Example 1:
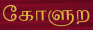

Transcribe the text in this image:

கோளுற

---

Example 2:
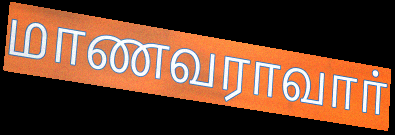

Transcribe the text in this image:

மாணவராவார்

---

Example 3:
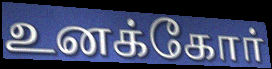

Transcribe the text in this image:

உனக்கோர்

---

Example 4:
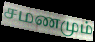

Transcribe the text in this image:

சமணமும்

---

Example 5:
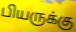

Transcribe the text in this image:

பியருக்கு